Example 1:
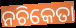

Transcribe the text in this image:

ନଚିକେତା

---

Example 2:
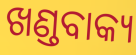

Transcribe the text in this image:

ଖଣ୍ଡବାକ୍ୟ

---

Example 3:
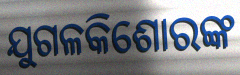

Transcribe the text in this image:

ଯୁଗଳକିଶୋରଙ୍କ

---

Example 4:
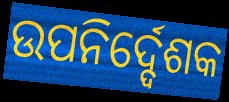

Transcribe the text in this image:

ଉପନିର୍ଦ୍ଦେଶକ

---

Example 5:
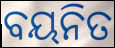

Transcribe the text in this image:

ବୟନିତ